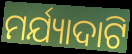
ମର୍ଯ୍ୟାଦାଟି